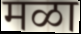
मळा